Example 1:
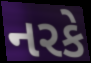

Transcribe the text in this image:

નરકે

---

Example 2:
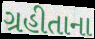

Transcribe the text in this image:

ગ્રહીતાના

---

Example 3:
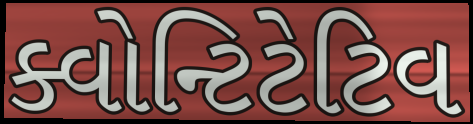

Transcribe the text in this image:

ક્વોન્ટિટેટિવ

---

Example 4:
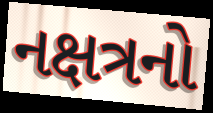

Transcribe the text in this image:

નક્ષત્રનો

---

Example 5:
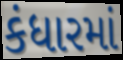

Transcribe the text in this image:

કંધારમાં